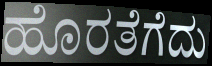
ಹೊರತೆಗೆದು